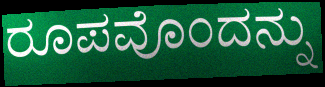
ರೂಪವೊಂದನ್ನು